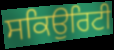
ਸਕਿਉਰਿਟੀ